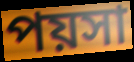
পয়সা